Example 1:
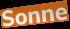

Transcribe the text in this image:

Sonne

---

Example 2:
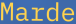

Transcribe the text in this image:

Marde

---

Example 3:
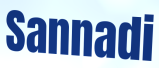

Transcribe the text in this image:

Sannadi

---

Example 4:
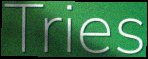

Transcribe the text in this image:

Tries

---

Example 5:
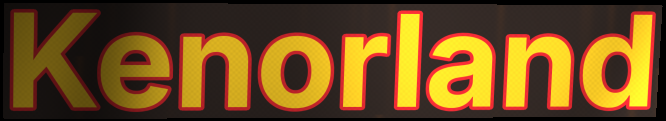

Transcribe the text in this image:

Kenorland